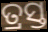
ତ୍ରସ୍ତ